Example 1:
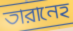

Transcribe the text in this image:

তারানেহ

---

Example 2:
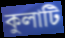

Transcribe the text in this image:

কুলাটি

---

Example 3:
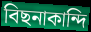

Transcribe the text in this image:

বিছনাকান্দি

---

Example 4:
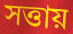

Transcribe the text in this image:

সত্তায়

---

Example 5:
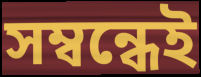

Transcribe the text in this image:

সম্বন্ধেই